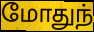
மோதுந்